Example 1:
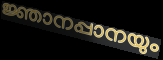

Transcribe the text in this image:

ജ്ഞാനപ്പാനയും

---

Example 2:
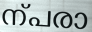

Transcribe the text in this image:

ന്പരാ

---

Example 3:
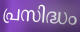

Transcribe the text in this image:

പ്രസിദ്ധം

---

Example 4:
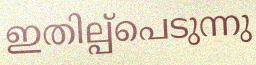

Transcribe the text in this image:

ഇതില്പ്പെടുന്നു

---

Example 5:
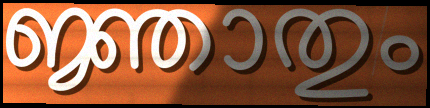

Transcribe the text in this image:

ജ്ഞാതും